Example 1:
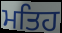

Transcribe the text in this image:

ਮਤਿਹ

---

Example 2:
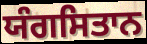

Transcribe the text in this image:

ਯੰਗਸਿਤਾਨ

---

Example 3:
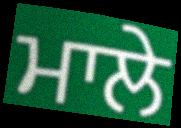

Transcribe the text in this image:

ਮਾਲੇ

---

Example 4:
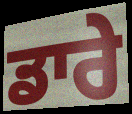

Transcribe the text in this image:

ਡਾਰੇ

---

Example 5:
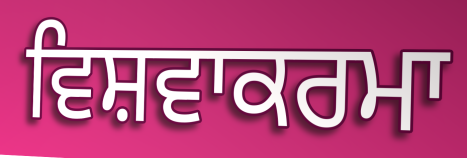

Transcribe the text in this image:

ਵਿਸ਼ਵਾਕਰਮਾ